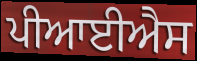
ਪੀਆਈਐਸ